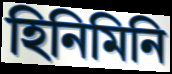
হিনিমিনি